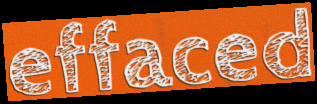
effaced